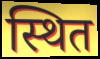
स्थित